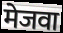
मेजवा